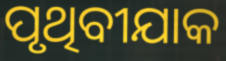
ପୃଥିବୀଯାକ